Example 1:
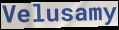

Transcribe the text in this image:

Velusamy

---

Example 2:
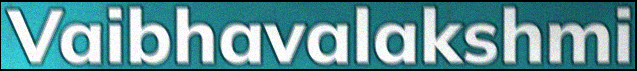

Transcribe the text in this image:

Vaibhavalakshmi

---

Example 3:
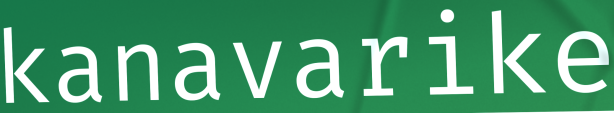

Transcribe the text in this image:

kanavarike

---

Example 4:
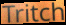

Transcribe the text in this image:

Tritch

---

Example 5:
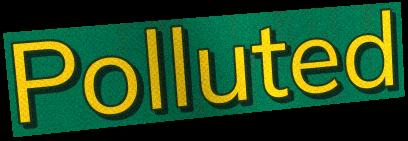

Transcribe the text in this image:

Polluted